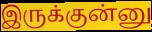
இருக்குன்னு